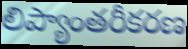
లిప్యాంతరీకరణ